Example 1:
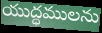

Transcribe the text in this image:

యుద్ధములను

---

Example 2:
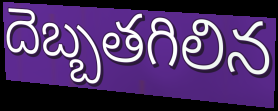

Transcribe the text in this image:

దెబ్బతగిలిన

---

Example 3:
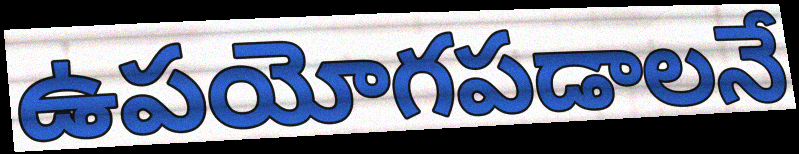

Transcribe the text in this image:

ఉపయోగపడాలనే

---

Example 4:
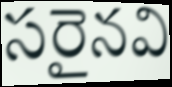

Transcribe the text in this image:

సరైనవి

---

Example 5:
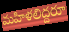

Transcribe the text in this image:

మహిళలిద్దరూ